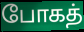
போகத்